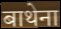
बाथेना